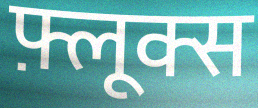
फ़्लूक्स